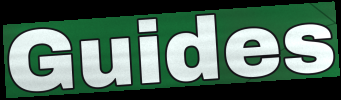
Guides